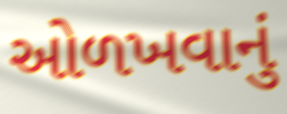
ઓળખવાનું